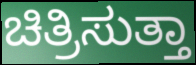
ಚಿತ್ರಿಸುತ್ತಾ